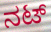
ನಟ್